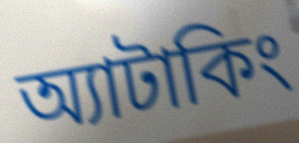
অ্যাটাকিং